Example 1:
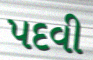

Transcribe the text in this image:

પદવી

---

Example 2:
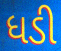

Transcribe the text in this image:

ધડી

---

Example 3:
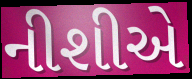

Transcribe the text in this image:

નીશીએ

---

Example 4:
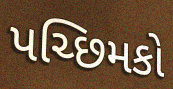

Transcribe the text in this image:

પચ્છિમકો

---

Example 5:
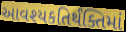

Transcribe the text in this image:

આવશ્યકતિર્થંક્તિમાં